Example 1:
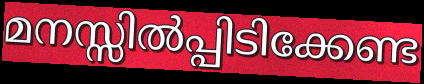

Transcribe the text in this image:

മനസ്സിൽപ്പിടിക്കേണ്ട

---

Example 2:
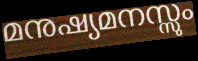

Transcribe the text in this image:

മനുഷ്യമനസ്സും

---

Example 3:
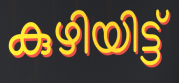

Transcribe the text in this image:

കുഴിയിട്ട്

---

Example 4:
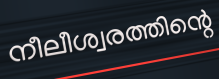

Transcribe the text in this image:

നീലീശ്വരത്തിന്റെ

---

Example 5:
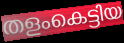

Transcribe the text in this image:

തളംകെട്ടിയ